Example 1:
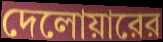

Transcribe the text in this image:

দেলোয়ারের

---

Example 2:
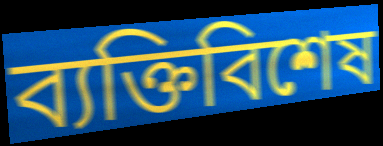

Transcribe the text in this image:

ব্যক্তিবিশেষ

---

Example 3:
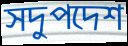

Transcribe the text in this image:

সদুপদেশ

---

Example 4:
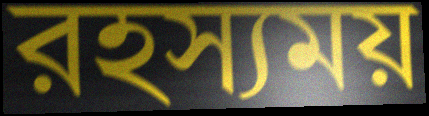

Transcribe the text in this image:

রহস্যময়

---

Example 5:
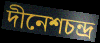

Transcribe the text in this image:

দীনেশচন্দ্র